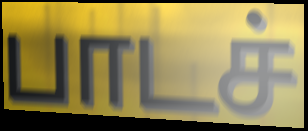
பாடச்